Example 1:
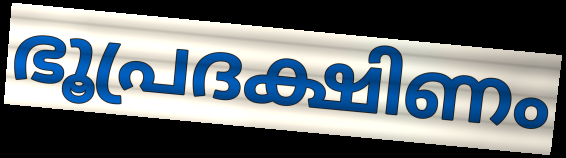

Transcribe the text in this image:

ഭൂപ്രദക്ഷിണം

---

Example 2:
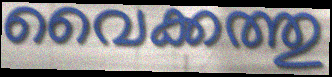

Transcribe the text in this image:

വൈക്കത്തു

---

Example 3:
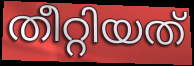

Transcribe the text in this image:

തീറ്റിയത്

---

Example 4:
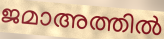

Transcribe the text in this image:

ജമാഅത്തിൽ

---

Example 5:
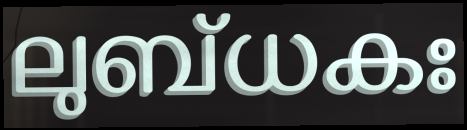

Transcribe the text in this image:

ലുബ്ധകഃ